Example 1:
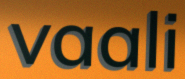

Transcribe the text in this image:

vaali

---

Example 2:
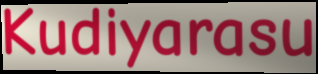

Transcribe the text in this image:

Kudiyarasu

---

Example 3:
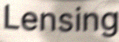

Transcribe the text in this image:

Lensing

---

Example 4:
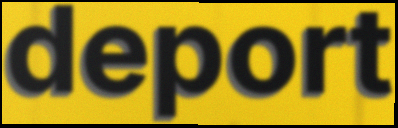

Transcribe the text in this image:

deport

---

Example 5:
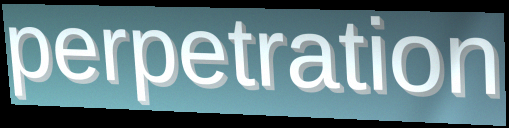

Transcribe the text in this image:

perpetration